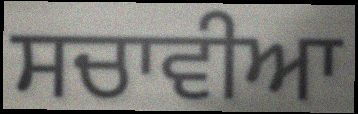
ਸਚਾਵੀਆ